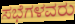
ಸಭೆಗಳವರು